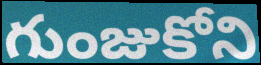
గుంజుకోని